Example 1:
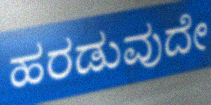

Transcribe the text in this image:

ಹರಡುವುದೇ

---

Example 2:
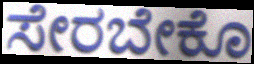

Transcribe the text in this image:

ಸೇರಬೇಕೊ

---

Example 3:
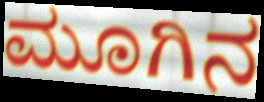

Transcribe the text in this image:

ಮೂಗಿನ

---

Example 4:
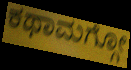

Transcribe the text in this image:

ಕಥಾಮಗ್ಗೋ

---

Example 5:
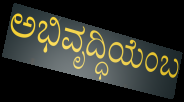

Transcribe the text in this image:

ಅಭಿವೃದ್ಧಿಯೆಂಬ